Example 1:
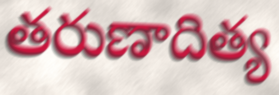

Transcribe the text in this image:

తరుణాదిత్య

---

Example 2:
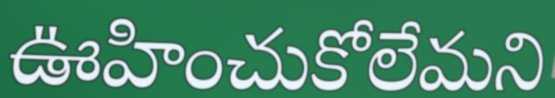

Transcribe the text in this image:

ఊహించుకోలేమని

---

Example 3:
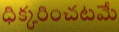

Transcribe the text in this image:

ధిక్కరించటమే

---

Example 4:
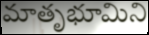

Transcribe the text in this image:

మాతృభూమిని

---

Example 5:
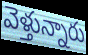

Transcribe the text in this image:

వెళ్తున్నారు